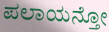
ಪಲಾಯನ್ತೋ